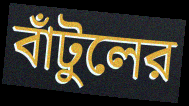
বাঁটুলের